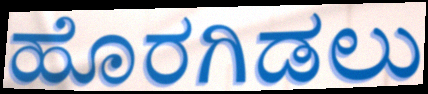
ಹೊರಗಿಡಲು